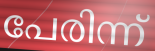
പേരിന്ന്